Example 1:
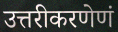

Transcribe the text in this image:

उत्तरीकरणेणं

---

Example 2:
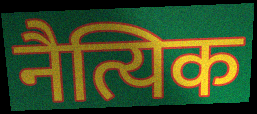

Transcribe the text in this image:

नैत्यिक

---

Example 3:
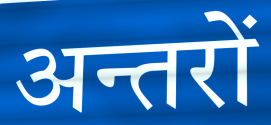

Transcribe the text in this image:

अन्तरों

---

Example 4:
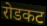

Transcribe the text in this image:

रोडकट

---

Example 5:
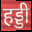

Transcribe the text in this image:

हड्डी